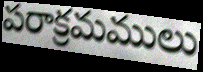
పరాక్రమములు